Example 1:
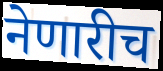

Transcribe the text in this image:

नेणारीच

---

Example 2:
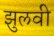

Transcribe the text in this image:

झुलवी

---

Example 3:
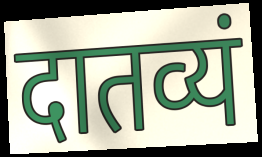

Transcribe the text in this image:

दातव्यं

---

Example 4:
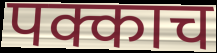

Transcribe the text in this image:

पक्काच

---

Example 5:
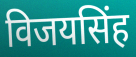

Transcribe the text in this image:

विजयसिंह